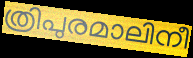
ത്രിപുരമാലിനീ